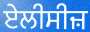
ਏਲੀਸੀਜ਼